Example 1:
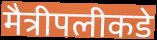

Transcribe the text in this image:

मैत्रीपलीकडे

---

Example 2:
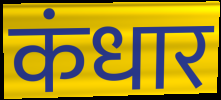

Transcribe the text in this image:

कंधार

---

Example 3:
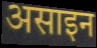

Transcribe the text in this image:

असाइन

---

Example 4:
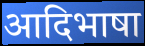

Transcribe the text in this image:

आदिभाषा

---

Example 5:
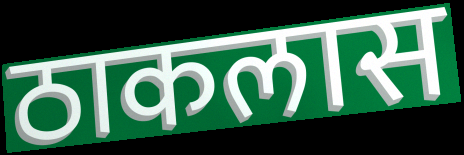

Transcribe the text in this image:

ठाकलास